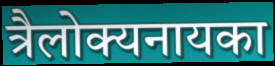
त्रैलोक्यनायका